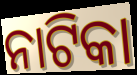
ନାଟିକା